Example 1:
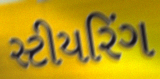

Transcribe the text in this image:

સ્ટીયરિંગ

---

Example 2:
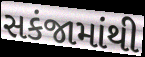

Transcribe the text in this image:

સકંજામાંથી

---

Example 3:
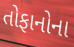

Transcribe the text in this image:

તોફાનોના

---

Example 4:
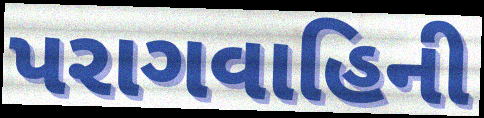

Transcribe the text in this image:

પરાગવાહિની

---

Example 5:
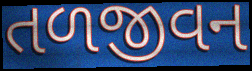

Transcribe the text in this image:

તળજીવન